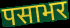
पसाभर